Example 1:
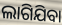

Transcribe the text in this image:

ଲାଗିଯିବା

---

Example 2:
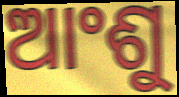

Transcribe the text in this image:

ଆଂଶୁ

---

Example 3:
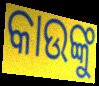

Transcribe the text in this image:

କାଉଙ୍କୁ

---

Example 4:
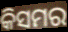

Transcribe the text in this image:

କିସମର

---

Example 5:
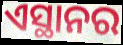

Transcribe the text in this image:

ଏସ୍ଥାନର